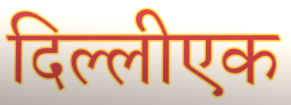
दिल्लीएक